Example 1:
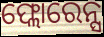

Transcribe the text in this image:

ଫ୍ଲୋରେନ୍ସ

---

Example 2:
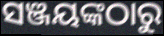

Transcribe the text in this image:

ସଞ୍ଜୟଙ୍କଠାରୁ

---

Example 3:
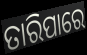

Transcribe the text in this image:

ତାରିପାରେ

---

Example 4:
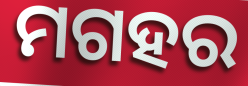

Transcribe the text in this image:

ମଗହର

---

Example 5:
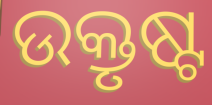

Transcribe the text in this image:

ଉକ୍ତୃଷ୍ଟ